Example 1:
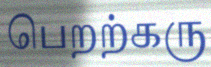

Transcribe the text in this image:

பெறற்கரு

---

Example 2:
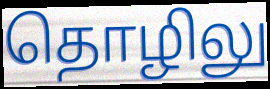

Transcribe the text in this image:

தொழிலு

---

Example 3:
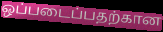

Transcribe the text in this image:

ஒப்படைப்பதற்கான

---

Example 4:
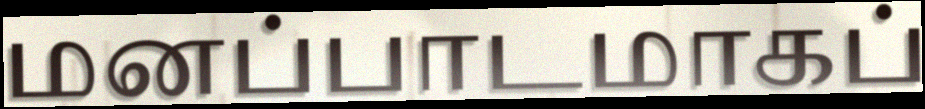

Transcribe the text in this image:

மனப்பாடமாகப்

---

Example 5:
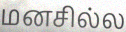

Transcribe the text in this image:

மனசில்ல